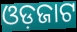
ଓଡ଼ଜାଟ